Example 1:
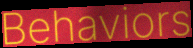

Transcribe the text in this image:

Behaviors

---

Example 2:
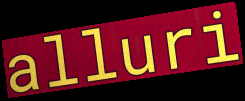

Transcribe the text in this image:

alluri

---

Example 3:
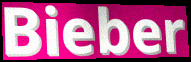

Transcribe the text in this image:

Bieber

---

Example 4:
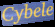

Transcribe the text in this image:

Cybele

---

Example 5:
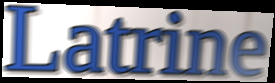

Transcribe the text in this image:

Latrine